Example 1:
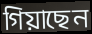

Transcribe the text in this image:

গিয়াছেন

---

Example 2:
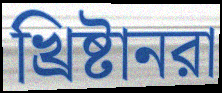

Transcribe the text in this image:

খ্রিষ্টানরা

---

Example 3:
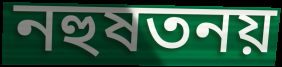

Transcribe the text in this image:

নহুষতনয়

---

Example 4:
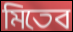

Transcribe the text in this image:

মিতেব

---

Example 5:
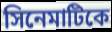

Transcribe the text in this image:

সিনেমাটিকে